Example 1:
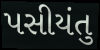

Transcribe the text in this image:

પસીયંતુ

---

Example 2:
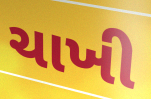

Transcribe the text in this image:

ચાખી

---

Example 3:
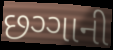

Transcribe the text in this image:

છગ્ગાની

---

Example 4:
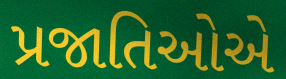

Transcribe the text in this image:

પ્રજાતિઓએ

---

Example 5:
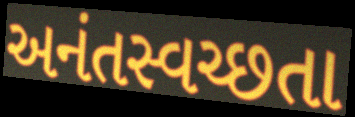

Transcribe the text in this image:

અનંતસ્વચ્છતા